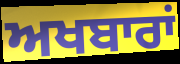
ਅਖਬਾਰਾਂ